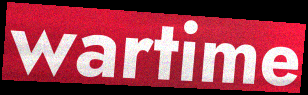
wartime